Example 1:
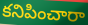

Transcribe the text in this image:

కనిపించారా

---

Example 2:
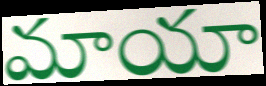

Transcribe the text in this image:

మాయా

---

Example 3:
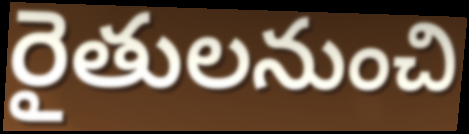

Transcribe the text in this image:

రైతులనుంచి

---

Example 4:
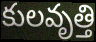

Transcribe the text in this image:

కులవృత్తి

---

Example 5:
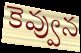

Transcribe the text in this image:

కెవ్వున